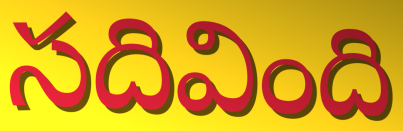
సదివింది